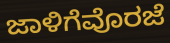
ಜಾಳಿಗೆವೊರಜೆ